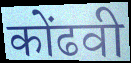
कोंढवी